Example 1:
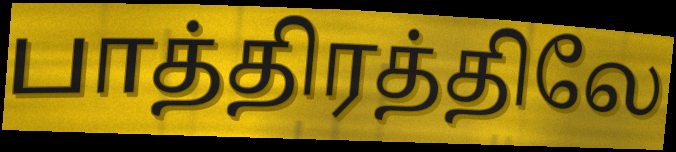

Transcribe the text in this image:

பாத்திரத்திலே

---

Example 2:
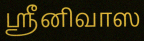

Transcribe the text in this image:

ஸ்ரீனிவாஸ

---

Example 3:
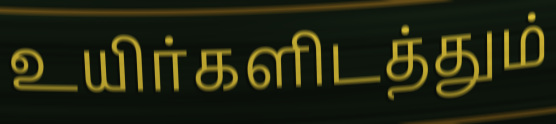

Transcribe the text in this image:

உயிர்களிடத்தும்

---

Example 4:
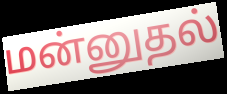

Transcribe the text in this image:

மன்னுதல்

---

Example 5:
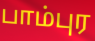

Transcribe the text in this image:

பாம்புர